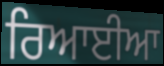
ਰਿਆਈਆ